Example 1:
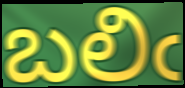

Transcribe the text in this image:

బలిఁ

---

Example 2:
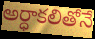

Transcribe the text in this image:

అర్ధాకలితోనే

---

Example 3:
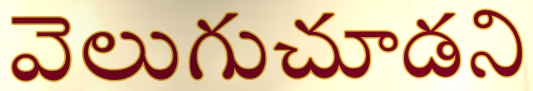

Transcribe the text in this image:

వెలుగుచూడని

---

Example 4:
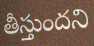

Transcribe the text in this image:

తీస్తుందని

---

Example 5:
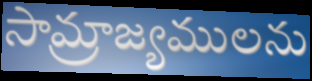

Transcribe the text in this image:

సామ్రాజ్యములను